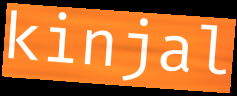
kinjal